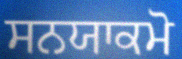
ਸਨਯਾਕਮੋ